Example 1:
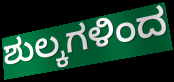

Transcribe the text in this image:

ಶುಲ್ಕಗಳಿಂದ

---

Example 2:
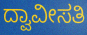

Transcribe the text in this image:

ದ್ವಾವೀಸತಿ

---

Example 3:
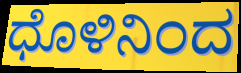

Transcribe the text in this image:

ಧೊಳಿನಿಂದ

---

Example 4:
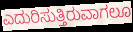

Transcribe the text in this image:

ಎದುರಿಸುತ್ತಿರುವಾಗಲೂ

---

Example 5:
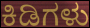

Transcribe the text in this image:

ಕಿಡಿಗಳು